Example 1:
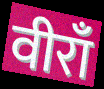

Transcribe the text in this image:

वीराँ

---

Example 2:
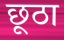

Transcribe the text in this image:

छूठा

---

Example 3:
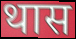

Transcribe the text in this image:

थास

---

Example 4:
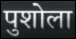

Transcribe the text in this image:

पुशोला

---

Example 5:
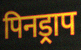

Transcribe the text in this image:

पिनड्राप